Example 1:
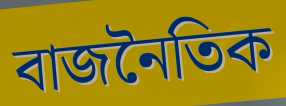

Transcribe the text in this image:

বাজনৈতিক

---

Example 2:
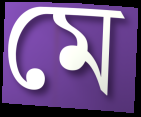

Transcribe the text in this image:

মে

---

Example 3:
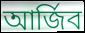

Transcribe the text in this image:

আৰ্জিব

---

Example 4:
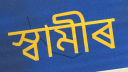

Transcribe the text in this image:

স্বামীৰ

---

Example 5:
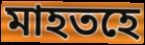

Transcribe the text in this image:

মাহতহে